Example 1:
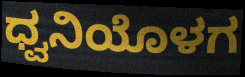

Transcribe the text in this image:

ಧ್ವನಿಯೊಳಗ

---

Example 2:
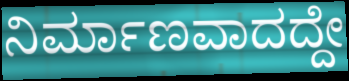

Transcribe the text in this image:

ನಿರ್ಮಾಣವಾದದ್ದೇ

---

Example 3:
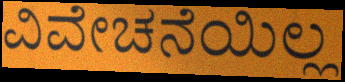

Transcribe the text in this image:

ವಿವೇಚನೆಯಿಲ್ಲ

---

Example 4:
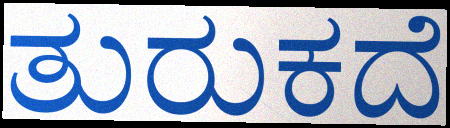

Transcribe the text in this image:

ತುರುಕದೆ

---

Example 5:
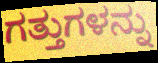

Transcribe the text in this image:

ಗತ್ತುಗಳನ್ನು